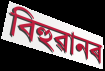
বিহুৱানৰ